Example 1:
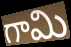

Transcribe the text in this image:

గామి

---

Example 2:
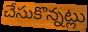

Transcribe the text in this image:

చేసుకొన్నట్లు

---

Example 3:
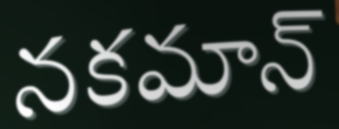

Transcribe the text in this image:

నకమాన్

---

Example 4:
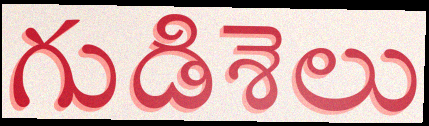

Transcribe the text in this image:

గుడిశెలు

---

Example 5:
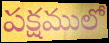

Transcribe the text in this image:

పక్షములో